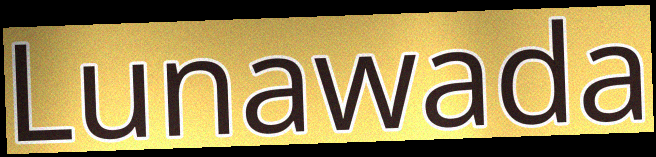
Lunawada